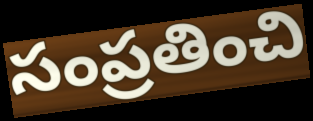
సంప్రతించి